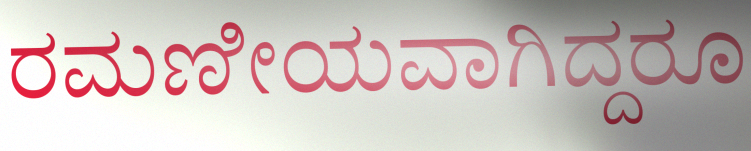
ರಮಣೀಯವಾಗಿದ್ದರೂ